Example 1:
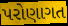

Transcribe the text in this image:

પરોણાગત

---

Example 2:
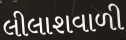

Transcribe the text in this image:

લીલાશવાળી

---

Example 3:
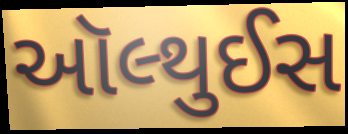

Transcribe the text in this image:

ઑલ્થુઈસ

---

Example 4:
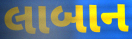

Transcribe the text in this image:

લાબાન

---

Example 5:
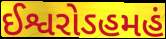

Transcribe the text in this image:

ઈશ્વરોઽહમહં